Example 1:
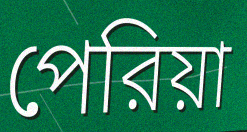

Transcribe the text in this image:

পেরিয়া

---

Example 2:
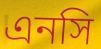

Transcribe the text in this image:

এনসি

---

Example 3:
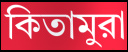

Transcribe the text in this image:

কিতামুরা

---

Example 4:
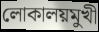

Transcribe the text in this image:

লোকালয়মুখী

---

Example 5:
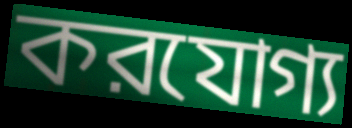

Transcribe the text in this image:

করযোগ্য